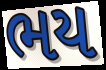
ભય